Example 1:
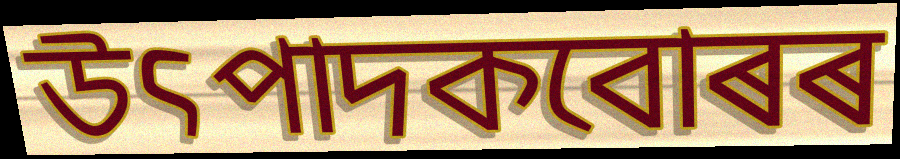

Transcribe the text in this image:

উৎপাদকবোৰৰ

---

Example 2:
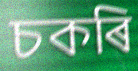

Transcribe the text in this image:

চকৰি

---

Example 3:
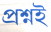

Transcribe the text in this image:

প্ৰশ্নই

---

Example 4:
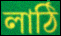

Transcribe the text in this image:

লাঠি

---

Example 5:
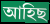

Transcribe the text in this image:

আহিছ